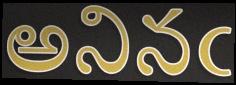
అనినఁ